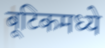
बूटिकमध्ये